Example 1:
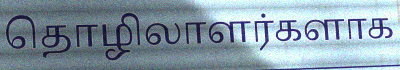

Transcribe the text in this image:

தொழிலாளர்களாக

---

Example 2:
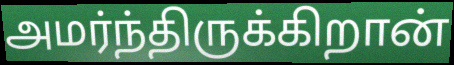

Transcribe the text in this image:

அமர்ந்திருக்கிறான்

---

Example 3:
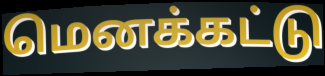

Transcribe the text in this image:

மெனக்கட்டு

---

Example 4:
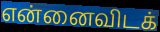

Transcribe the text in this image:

என்னைவிடக்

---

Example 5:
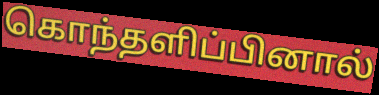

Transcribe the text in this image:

கொந்தளிப்பினால்